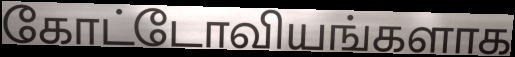
கோட்டோவியங்களாக